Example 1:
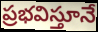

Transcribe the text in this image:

ప్రభవిస్తూనే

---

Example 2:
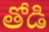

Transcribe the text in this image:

తోడి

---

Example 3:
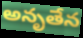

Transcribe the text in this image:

అనృతేన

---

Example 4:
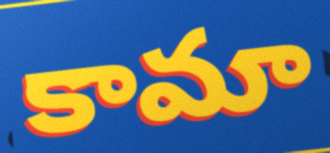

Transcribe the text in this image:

కామా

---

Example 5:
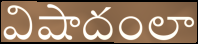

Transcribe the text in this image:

విషాదంలా